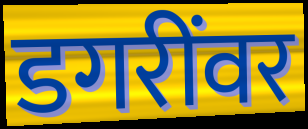
डगरींवर